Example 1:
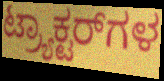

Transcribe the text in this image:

ಟ್ರ್ಯಾಕ್ಟರ್‌ಗಳ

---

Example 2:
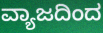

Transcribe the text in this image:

ವ್ಯಾಜದಿಂದ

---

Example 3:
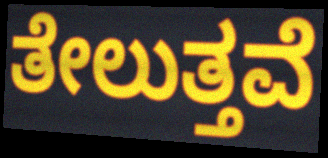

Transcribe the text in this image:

ತೇಲುತ್ತವೆ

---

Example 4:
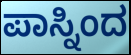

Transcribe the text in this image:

ಪಾಸ್ನಿಂದ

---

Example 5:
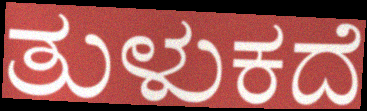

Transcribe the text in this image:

ತುಳುಕದೆ